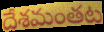
దేశమంతట